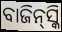
ବାଜିନ୍‌ସ୍କି